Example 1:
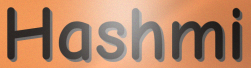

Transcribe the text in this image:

Hashmi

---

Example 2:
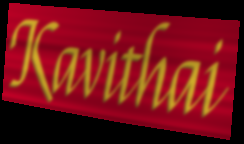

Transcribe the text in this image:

Kavithai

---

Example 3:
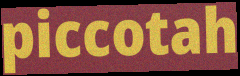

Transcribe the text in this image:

piccotah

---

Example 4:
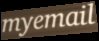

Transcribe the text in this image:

myemail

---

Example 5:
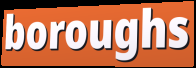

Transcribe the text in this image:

boroughs